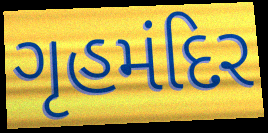
ગૃહમંદિર